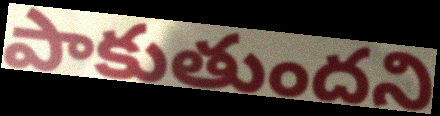
పాకుతుందని